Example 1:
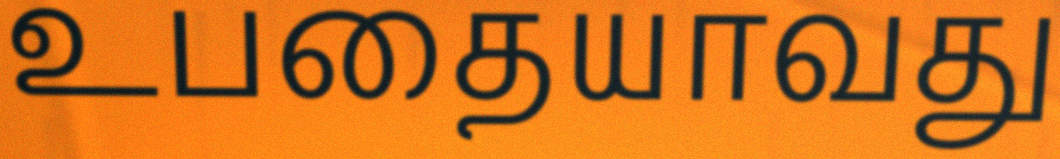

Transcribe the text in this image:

உபதையாவது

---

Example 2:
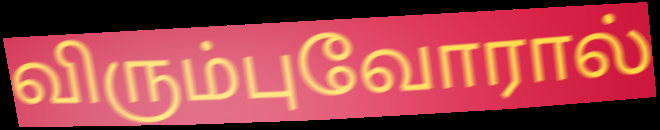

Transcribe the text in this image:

விரும்புவோரால்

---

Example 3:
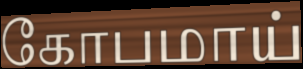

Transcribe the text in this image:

கோபமாய்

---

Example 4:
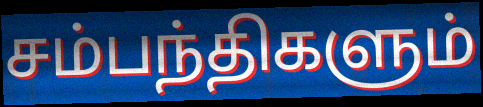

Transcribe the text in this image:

சம்பந்திகளும்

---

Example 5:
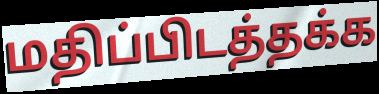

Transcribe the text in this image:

மதிப்பிடத்தக்க